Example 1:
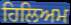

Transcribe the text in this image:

ਹਿਲਿਅਮ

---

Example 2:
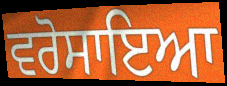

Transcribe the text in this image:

ਵਰੋਸਾਇਆ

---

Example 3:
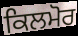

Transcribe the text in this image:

ਕਿਲਮੋਰ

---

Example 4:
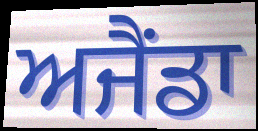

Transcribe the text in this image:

ਅਜੈਂਡਾ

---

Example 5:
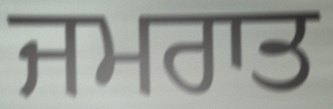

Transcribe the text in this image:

ਜਮਰਾਤ